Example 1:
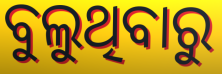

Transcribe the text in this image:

ବୁଲୁଥିବାରୁ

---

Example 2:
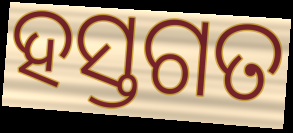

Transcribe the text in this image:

ହସ୍ତଗତ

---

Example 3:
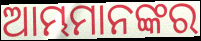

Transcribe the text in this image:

ଆମ୍ଭମାନଙ୍କର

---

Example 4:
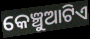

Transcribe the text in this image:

କେଞ୍ଚୁଆଟିଏ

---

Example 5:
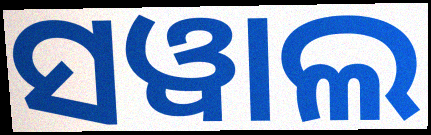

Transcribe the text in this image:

ସୱାଲ